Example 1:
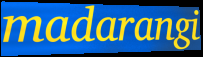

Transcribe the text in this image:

madarangi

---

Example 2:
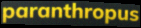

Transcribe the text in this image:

paranthropus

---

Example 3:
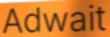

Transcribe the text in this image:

Adwait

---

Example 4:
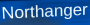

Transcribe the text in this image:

Northanger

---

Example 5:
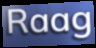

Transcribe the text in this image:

Raag